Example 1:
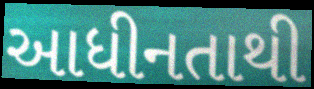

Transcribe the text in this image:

આધીનતાથી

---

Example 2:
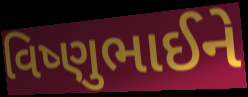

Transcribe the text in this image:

વિષ્ણુભાઈને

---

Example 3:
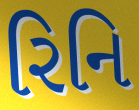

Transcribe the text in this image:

રિનિ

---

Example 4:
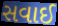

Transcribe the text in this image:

સવાઈ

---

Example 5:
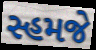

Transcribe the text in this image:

સ્હમજે